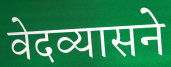
वेदव्यासने